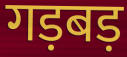
गड़बड़